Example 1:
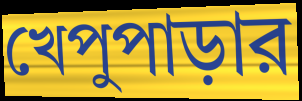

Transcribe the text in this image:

খেপুপাড়ার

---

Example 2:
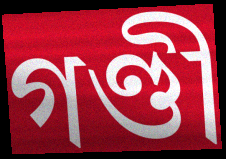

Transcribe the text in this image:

গণ্ডী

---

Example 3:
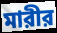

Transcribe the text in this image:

মারীর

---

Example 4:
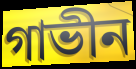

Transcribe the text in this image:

গাভীন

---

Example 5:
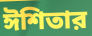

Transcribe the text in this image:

ঈশিতার